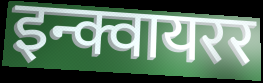
इन्क्वायरर